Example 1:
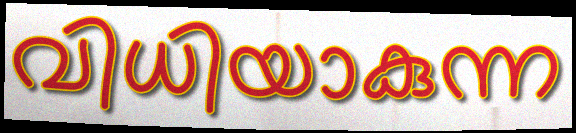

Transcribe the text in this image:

വിധിയാകുന്ന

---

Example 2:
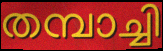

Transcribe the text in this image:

തമ്പാച്ചി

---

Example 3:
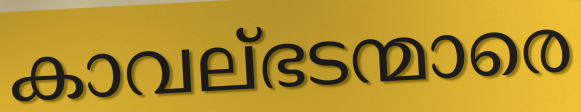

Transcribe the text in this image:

കാവല്ഭടന്മാരെ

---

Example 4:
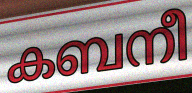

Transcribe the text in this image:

കബനീ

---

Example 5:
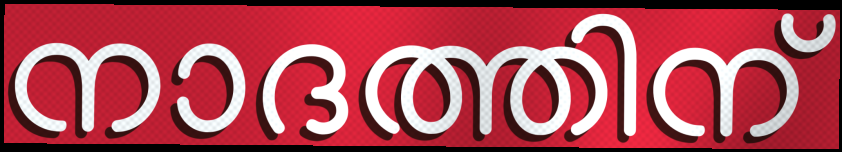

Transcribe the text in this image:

നാദത്തിന്